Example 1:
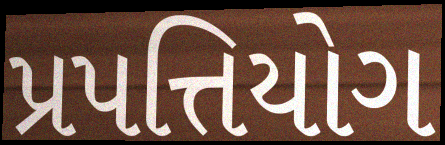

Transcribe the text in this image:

પ્રપત્તિયોગ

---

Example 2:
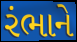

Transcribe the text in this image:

રંભાને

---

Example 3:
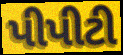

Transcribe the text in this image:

પીપીટી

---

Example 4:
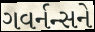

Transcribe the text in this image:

ગવર્નન્સને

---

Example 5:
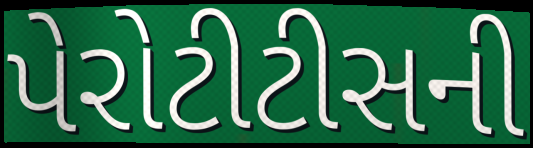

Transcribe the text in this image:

પેરોટીટીસની